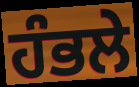
ਹੰਭਲੇ